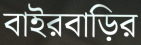
বাইরবাড়ির